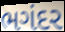
ભગંદર